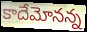
కాదేమోనన్న